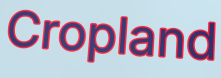
Cropland